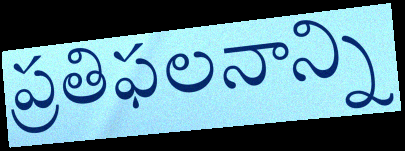
ప్రతిఫలనాన్ని